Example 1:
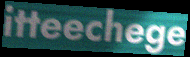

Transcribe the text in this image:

itteechege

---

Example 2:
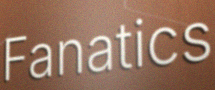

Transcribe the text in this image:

Fanatics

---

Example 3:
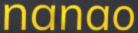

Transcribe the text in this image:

nanao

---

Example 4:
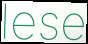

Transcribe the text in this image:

lese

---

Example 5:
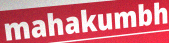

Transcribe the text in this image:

mahakumbh